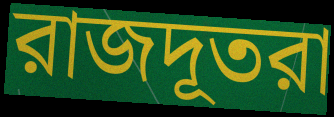
রাজদূতরা